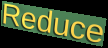
Reduce